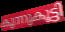
കുന്നുകൂട്ടി